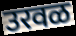
उरवळ